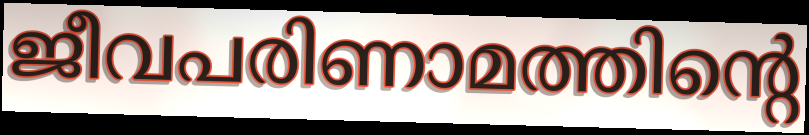
ജീവപരിണാമത്തിന്റെ